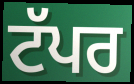
ਟੱਪਰ